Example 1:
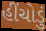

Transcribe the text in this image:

હીંચોડું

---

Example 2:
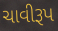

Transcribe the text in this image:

ચાવીરૂપ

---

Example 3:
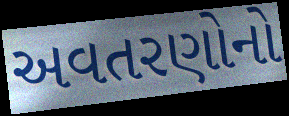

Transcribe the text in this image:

અવતરણોનો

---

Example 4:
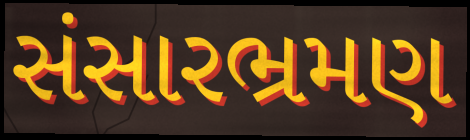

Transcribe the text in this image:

સંસારભ્રમણ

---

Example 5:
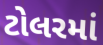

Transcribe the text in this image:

ટોલરમાં